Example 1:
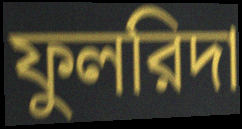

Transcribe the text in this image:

ফুলরিদা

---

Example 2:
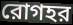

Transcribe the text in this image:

রোগহর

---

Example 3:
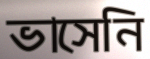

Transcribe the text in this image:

ভাসেনি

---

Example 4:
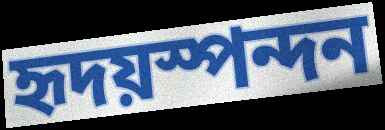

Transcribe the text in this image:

হৃদয়স্পন্দন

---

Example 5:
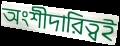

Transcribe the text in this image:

অংশীদারিত্বই